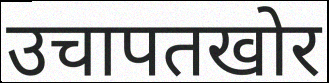
उचापतखोर